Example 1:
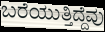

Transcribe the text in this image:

ಬರೆಯುತ್ತಿದ್ದೆವು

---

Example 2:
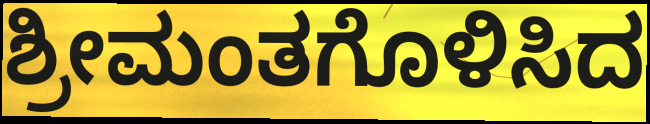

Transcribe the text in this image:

ಶ್ರೀಮಂತಗೊಳಿಸಿದ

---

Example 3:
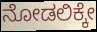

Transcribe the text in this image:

ನೋಡಲಿಕ್ಕೇ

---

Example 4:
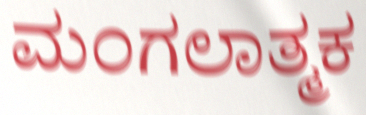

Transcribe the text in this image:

ಮಂಗಲಾತ್ಮಕ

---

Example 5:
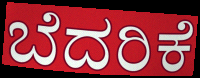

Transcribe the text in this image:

ಬೆದರಿಕೆ